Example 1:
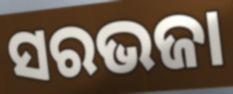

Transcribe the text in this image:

ସରଭଜା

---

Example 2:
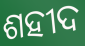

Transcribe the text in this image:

ଶହୀଦ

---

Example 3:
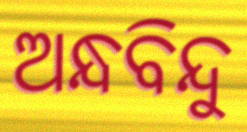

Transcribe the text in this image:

ଅନ୍ଧବିନ୍ଦୁ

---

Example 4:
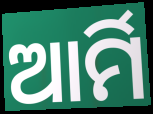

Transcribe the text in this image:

ଆର୍ମି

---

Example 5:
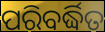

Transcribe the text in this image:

ପରିବର୍ଦ୍ଧିତ